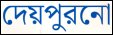
দেয়পুরনো